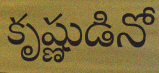
కృష్ణుడినో